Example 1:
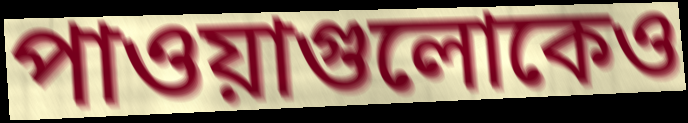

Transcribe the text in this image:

পাওয়াগুলোকেও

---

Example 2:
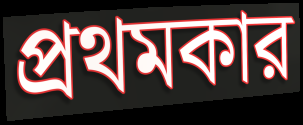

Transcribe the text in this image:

প্রথমকার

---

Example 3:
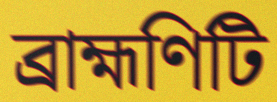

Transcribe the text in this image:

ব্রাহ্মণিটি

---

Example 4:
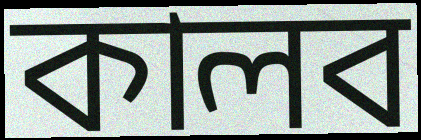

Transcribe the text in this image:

কালব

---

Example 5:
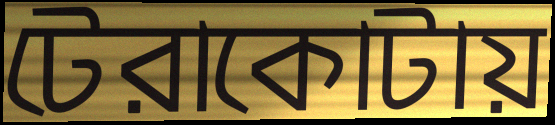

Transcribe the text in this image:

টেরাকোটায়